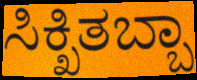
ಸಿಕ್ಖಿತಬ್ಬಾ